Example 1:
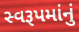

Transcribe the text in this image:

સ્વરૂપમાંનું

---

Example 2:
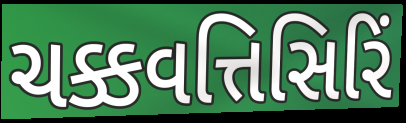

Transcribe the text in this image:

ચક્કવત્તિસિરિં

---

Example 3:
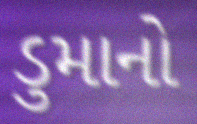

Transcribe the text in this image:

ડુમાનો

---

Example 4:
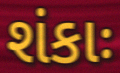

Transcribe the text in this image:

શંકાઃ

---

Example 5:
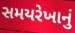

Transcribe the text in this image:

સમયરેખાનું